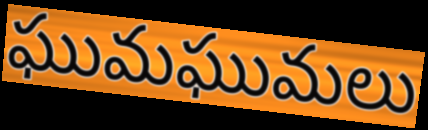
ఘుమఘుమలు